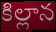
కిల్లాన